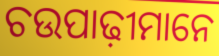
ଚଉପାଢ଼ୀମାନେ